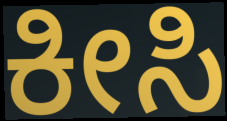
ಕೀಸಿ